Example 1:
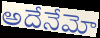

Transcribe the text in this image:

అదేనేమో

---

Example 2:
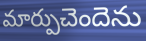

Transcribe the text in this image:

మార్పుచెందెను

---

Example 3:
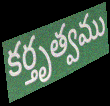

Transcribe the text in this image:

కర్తృత్వము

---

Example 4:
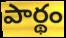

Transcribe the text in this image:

పార్థం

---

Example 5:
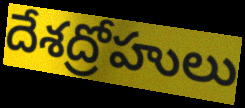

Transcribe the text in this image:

దేశద్రోహులు